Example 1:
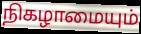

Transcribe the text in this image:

நிகழாமையும்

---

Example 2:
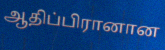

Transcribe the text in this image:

ஆதிப்பிரானான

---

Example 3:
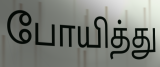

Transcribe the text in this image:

போயித்து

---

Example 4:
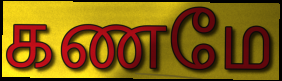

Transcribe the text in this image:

கணமே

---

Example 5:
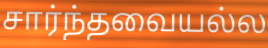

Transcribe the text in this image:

சார்ந்தவையல்ல